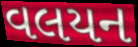
વલયન